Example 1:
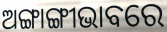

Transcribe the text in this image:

ଅଙ୍ଗାଙ୍ଗୀଭାବରେ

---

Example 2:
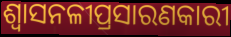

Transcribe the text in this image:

ଶ୍ୱାସନଳୀପ୍ରସାରଣକାରୀ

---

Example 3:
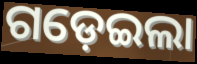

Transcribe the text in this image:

ଗଡ଼େଇଲା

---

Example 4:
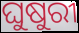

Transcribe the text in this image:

ଘୁଷୁରୀ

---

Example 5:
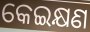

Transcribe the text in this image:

କେଇକ୍ଷଣ